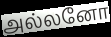
அல்லனோ